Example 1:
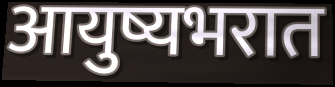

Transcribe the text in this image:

आयुष्यभरात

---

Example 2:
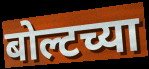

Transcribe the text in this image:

बोल्टच्या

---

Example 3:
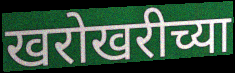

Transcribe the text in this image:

खरोखरीच्या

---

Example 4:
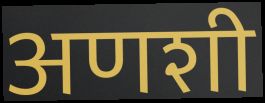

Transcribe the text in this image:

अणशी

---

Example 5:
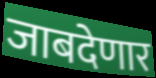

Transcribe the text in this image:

जाबदेणार